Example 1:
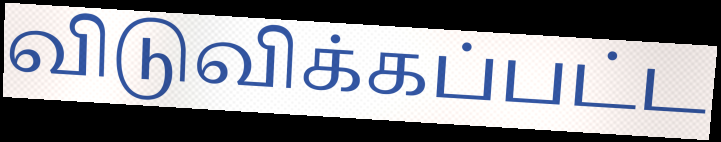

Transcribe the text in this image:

விடுவிக்கப்பட்ட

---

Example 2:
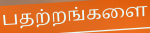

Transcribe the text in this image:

பதற்றங்களை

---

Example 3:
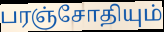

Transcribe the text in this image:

பரஞ்சோதியும்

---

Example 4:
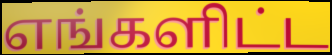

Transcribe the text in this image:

எங்களிட்ட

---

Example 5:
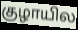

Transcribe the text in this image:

குழாயில